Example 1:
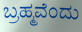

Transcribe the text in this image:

ಬ್ರಹ್ಮವೆಂದು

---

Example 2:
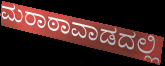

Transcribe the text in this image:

ಮರಾಠಾವಾಡದಲ್ಲಿ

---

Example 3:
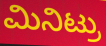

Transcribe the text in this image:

ಮಿನಿಟ್ರು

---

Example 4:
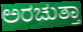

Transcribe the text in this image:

ಅರಚುತ್ತಾ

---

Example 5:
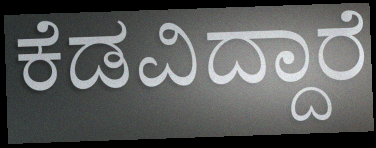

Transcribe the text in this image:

ಕೆಡವಿದ್ದಾರೆ